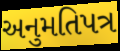
અનુમતિપત્ર